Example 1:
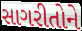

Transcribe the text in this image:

સાગરીતોને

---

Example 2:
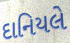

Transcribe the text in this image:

દાનિયલે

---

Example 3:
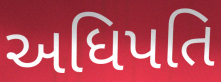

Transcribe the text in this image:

અધિપતિ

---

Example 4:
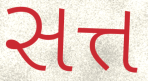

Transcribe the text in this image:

સત્ત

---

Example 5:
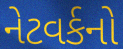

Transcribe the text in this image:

નેટવર્કનો